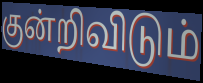
குன்றிவிடும்